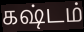
கஷ்டம்